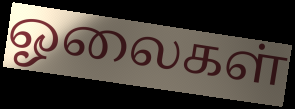
ஓலைகள்